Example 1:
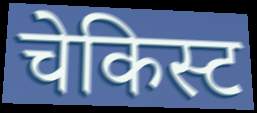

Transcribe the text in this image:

चेकिस्ट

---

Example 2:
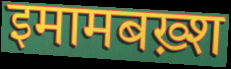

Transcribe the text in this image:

इमामबख़्श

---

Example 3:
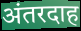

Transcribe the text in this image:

अंतरदाह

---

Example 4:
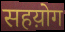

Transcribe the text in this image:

सहय़ोग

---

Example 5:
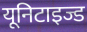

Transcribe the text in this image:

यूनिटाइज्ड